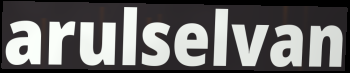
arulselvan